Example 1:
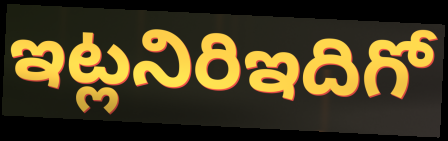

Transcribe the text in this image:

ఇట్లనిరిఇదిగో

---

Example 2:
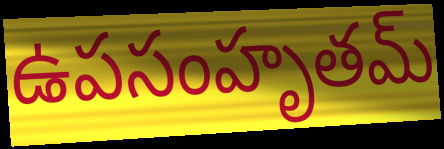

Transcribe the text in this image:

ఉపసంహృతమ్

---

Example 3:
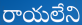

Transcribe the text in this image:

రాయలేని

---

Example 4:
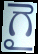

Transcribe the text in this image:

గై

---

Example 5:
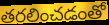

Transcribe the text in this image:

తరలించడంతో